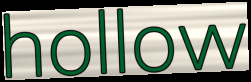
hollow